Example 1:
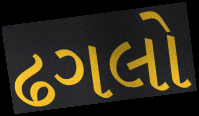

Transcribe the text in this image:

ઢગલો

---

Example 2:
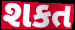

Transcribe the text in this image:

શકત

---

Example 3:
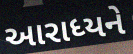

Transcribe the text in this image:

આરાધ્યને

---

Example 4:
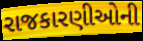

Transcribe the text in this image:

રાજકારણીઓની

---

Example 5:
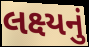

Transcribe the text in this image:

લક્ષ્યનું